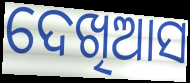
ଦେଖିଆସ